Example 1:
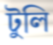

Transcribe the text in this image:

টুলি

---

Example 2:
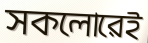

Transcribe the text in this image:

সকলোৱেই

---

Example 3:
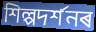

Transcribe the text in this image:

শিল্পদৰ্শনৰ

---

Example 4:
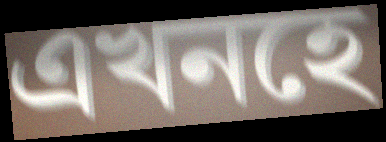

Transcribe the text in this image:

এখনহে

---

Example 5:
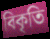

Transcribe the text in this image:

বিকৃতি